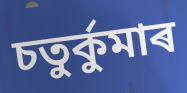
চতুৰ্কুমাৰ